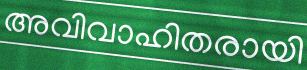
അവിവാഹിതരായി